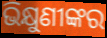
ଭିକ୍ଷୁଣୀଙ୍କର